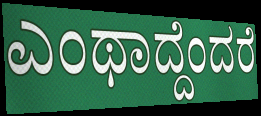
ಎಂಥಾದ್ದೆಂದರೆ